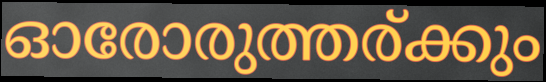
ഓരോരുത്തര്ക്കും